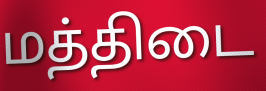
மத்திடை